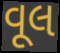
વૂલ